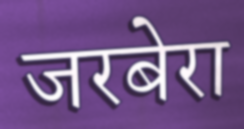
जरबेरा